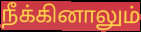
நீக்கினாலும்